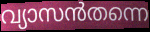
വ്യാസൻതന്നെ